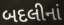
બદલીનાં